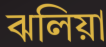
ঝলিয়া